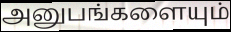
அனுபங்களையும்